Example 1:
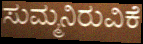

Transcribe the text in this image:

ಸುಮ್ಮನಿರುವಿಕೆ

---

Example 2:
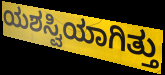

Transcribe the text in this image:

ಯಶಸ್ವಿಯಾಗಿತ್ತು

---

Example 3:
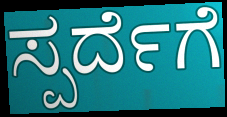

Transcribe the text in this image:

ಸ್ಪರ್ದೆಗೆ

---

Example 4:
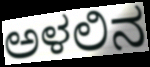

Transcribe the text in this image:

ಅಳಲಿನ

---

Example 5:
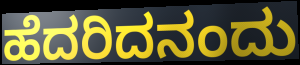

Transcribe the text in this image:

ಹೆದರಿದನಂದು